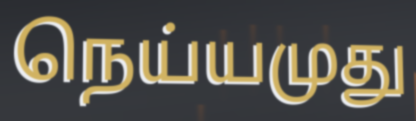
நெய்யமுது